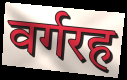
वर्गरह